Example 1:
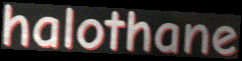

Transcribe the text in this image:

halothane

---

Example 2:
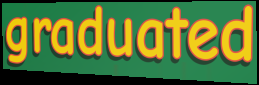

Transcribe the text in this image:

graduated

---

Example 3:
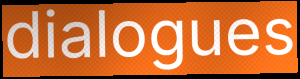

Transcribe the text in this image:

dialogues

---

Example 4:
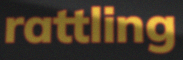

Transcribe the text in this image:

rattling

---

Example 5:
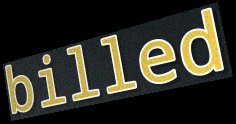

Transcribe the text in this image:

billed